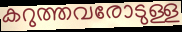
കറുത്തവരോടുള്ള